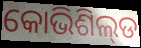
କୋଭିଶିଲ୍‌ଡ